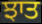
ਝਾਤ